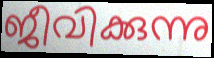
ജീവിക്കുന്നു